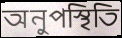
অনুপস্থিতি